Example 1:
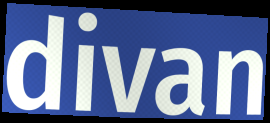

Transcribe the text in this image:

divan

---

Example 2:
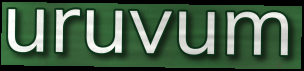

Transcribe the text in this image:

uruvum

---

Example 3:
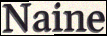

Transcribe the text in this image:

Naine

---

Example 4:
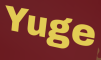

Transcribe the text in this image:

Yuge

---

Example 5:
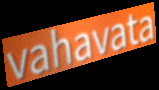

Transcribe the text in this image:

vahavata